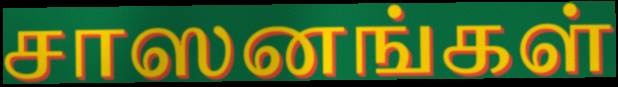
சாஸனங்கள்